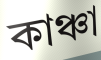
কাঞ্চা